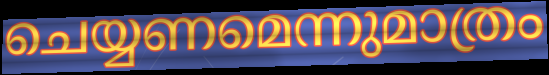
ചെയ്യണമെന്നുമാത്രം